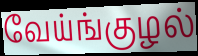
வேய்ங்குழல்